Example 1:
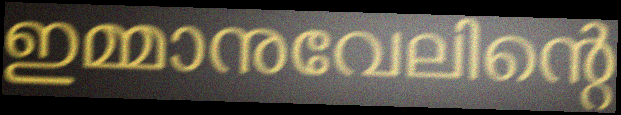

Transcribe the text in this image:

ഇമ്മാനുവേലിന്റെ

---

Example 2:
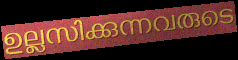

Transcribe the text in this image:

ഉല്ലസിക്കുന്നവരുടെ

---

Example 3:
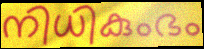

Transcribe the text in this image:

നിധികുംഭം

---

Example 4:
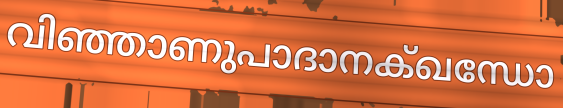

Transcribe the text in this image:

വിഞ്ഞാണുപാദാനക്ഖന്ധോ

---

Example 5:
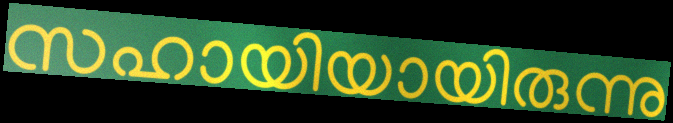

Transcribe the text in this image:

സഹായിയായിരുന്നു